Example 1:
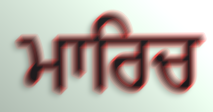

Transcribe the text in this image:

ਮਾਰਿਚ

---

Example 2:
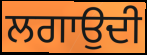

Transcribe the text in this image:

ਲਗਾਉਦੀ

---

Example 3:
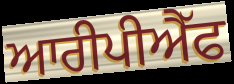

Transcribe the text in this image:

ਆਰੀਪੀਐੱਫ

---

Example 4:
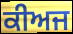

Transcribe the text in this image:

ਕੀਅਜ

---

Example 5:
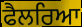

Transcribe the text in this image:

ਫੈਲਰਿਆ